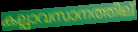
കല്പാവസാനത്തില്